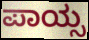
ಪಾಯ್ಸ